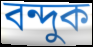
বন্দুক